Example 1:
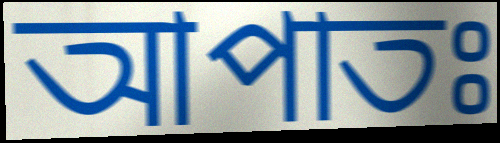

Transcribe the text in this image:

আপাতঃ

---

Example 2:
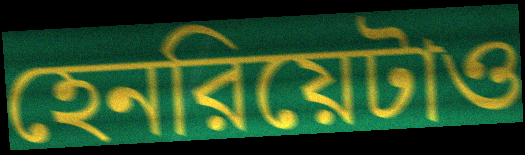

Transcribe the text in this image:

হেনরিয়েটাও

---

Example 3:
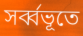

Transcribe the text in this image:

সর্ব্বভূতে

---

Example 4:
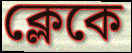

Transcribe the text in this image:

ক্লেকে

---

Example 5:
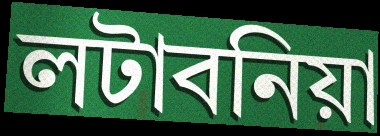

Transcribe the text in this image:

লটাবনিয়া